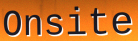
Onsite